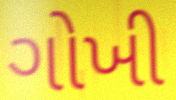
ગોખી